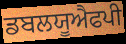
ਡਬਲਯੂਐਫਪੀ